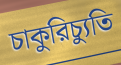
চাকুরিচ্যুতি